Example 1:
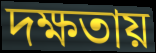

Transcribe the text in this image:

দক্ষতায়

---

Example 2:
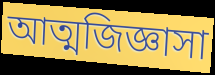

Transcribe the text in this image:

আত্মজিজ্ঞাসা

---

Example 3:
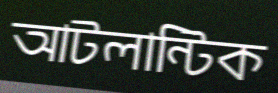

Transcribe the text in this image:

আটলান্টিক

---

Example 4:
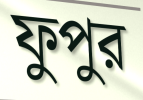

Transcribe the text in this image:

ফুপুর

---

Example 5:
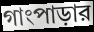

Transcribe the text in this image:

গাংপাড়ার